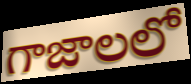
గాజాలలో